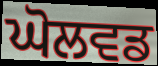
ਘੋਲਵਡ